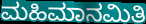
ಮಹಿಮಾನಮಿತಿ